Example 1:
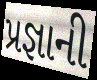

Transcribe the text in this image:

પ્રજ્ઞાની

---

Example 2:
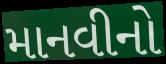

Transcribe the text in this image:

માનવીનો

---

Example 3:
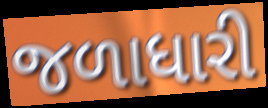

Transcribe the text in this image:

જળાધારી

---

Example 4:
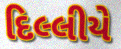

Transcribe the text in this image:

દિલ્લીયે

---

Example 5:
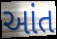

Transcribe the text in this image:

આંત